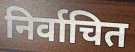
निर्वाचित